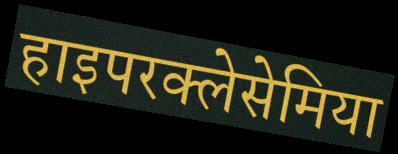
हाइपरक्लेसेमिया